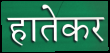
हातेकर